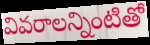
వివరాలన్నింటితో